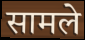
सामले